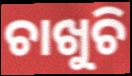
ଚାଖୁଚି